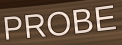
PROBE